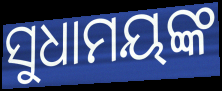
ସୁଧାମୟଙ୍କ